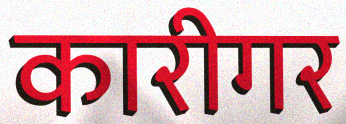
कारीगर